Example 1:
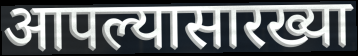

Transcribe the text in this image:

आपल्यासारख्या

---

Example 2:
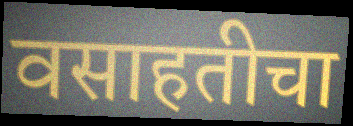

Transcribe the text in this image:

वसाहतीचा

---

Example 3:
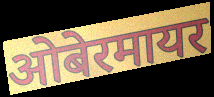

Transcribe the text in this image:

ओबेरमायर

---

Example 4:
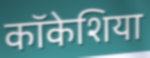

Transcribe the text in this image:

कॉकेशिया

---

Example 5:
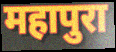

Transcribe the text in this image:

महापुरा